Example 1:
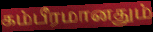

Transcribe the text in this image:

கம்பீரமானதும்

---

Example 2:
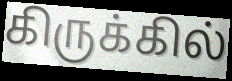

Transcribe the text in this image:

கிருக்கில்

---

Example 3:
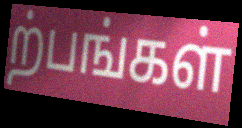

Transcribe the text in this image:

ற்பங்கள்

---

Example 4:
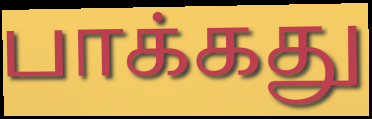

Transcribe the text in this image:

பாக்கது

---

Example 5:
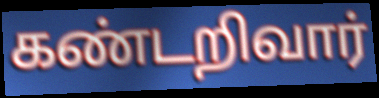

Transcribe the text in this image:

கண்டறிவார்